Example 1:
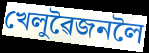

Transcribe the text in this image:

খেলুৱৈজনলৈ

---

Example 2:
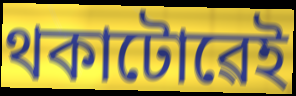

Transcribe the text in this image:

থকাটোৱেই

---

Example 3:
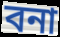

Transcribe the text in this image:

বনা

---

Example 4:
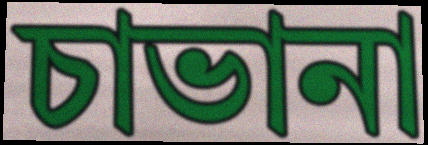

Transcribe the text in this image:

চাভানা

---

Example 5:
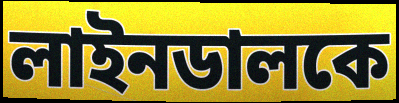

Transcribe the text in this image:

লাইনডালকে